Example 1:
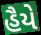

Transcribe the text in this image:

હૈયે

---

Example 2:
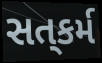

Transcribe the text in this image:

સત્‌કર્મ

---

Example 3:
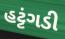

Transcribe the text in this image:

હટ્ટંગડી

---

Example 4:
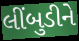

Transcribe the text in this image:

લીંબુડીને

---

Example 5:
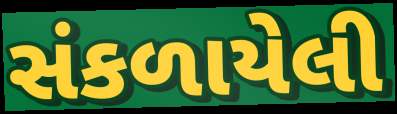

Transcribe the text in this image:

સંકળાયેલી